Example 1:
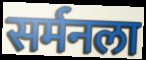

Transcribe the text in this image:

सर्मनला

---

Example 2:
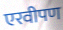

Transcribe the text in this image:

एरवीपण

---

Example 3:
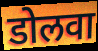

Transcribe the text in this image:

डोलवा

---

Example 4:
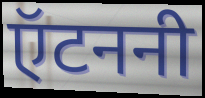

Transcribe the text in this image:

ऍटननी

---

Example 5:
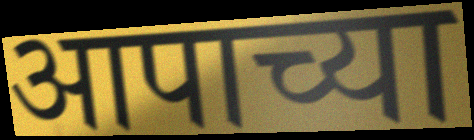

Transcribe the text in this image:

आपाच्या